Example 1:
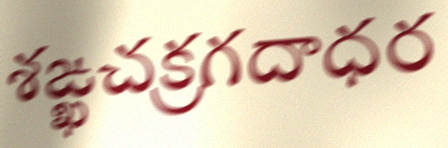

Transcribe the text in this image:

శఙ్ఖచక్రగదాధర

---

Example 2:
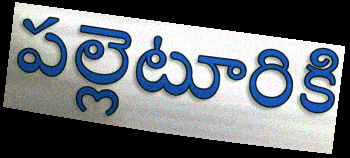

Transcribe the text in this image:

పల్లెటూరికి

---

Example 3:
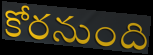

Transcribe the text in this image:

కోరనుంది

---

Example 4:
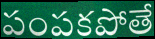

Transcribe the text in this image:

పంపకపోతే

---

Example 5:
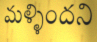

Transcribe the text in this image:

మళ్ళిందని